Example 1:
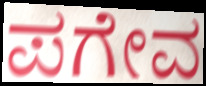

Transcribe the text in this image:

ಪಗೇವ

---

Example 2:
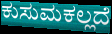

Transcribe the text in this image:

ಕುಸುಮಕಲ್ಲದೆ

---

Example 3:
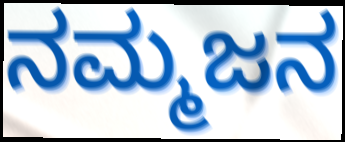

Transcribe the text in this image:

ನಮ್ಮಜನ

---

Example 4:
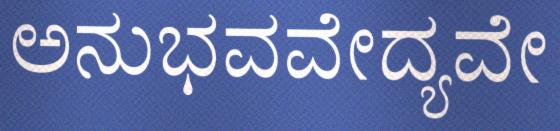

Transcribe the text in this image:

ಅನುಭವವೇದ್ಯವೇ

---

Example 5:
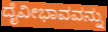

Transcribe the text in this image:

ದೈವೀಭಾವವನ್ನು